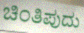
ಚಿಂತಿಪುದು